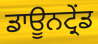
ਡਾਊਨਟ੍ਰੇਂਡ